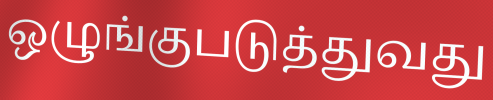
ஒழுங்குபடுத்துவது